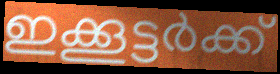
ഇക്കൂട്ടർക്ക്